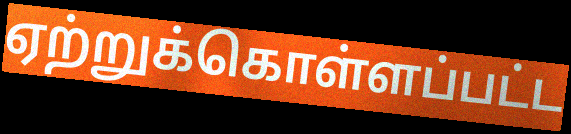
ஏற்றுக்கொள்ளப்பட்ட